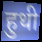
हुथी